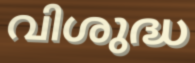
വിശുദ്ധ